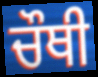
ਚੌਥੀ